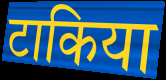
टाकिया